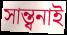
সান্ত্বনাই